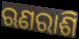
ଋଣରାଶି